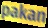
pakan